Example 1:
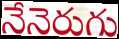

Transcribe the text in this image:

నేనెరుగు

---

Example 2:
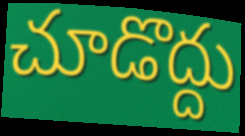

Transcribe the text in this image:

చూడొద్దు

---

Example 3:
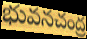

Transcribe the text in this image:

భువనచంద్ర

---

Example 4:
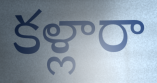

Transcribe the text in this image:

కళ్లారా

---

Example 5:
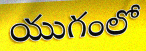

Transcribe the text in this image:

యుగంలో